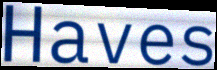
Haves